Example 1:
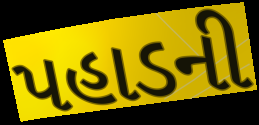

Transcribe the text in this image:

પહાડની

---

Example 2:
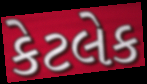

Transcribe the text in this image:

કેટલેક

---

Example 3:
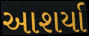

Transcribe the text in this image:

આશર્યા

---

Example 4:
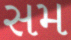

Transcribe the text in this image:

સમ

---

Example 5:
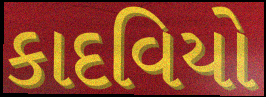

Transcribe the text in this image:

કાદવિયો